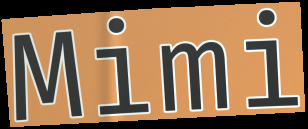
Mimi